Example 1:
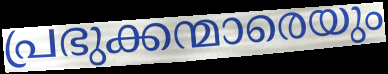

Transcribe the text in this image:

പ്രഭുക്കന്മാരെയും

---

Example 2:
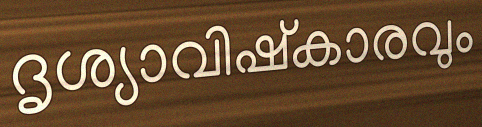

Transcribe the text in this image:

ദൃശ്യാവിഷ്കാരവും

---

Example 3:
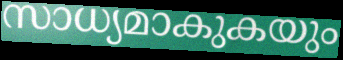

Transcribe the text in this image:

സാധ്യമാകുകയും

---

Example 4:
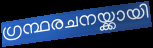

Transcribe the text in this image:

ഗ്രന്ഥരചനയ്ക്കായി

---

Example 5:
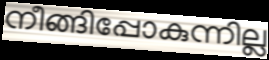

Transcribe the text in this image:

നീങ്ങിപ്പോകുന്നില്ല